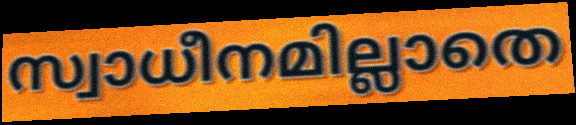
സ്വാധീനമില്ലാതെ